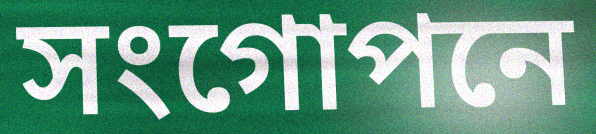
সংগোপনে